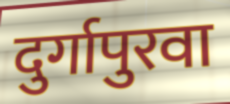
दुर्गापुरवा